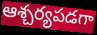
ఆశ్చర్యపడగా